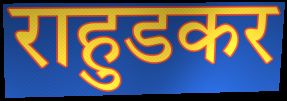
राहुडकर